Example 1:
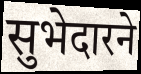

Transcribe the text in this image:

सुभेदारने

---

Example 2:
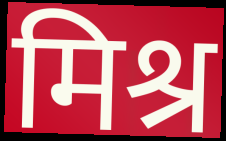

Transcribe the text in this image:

मिश्र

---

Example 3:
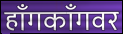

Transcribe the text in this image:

हॉंगकॉंगवर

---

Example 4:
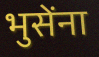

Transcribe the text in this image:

भुसेंना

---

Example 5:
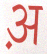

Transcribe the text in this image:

अ़